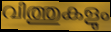
വിത്തുകളും